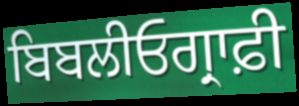
ਬਿਬਲੀਓਗ੍ਰਾਫ਼ੀ